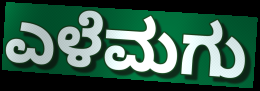
ಎಳೆಮಗು